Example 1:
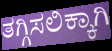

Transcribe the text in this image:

ತಗ್ಗಿಸಲಿಕ್ಕಾಗಿ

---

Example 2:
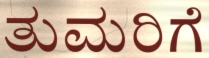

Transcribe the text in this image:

ತುಮರಿಗೆ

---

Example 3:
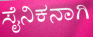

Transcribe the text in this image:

ಸೈನಿಕನಾಗಿ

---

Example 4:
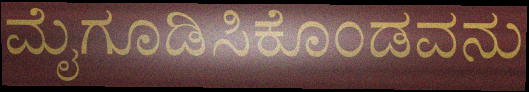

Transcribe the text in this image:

ಮೈಗೂಡಿಸಿಕೊಂಡವನು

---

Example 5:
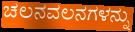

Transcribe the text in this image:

ಚಲನವಲನಗಳನ್ನು